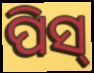
ପିସ୍